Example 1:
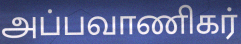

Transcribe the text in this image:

அப்பவாணிகர்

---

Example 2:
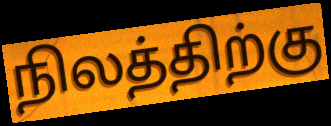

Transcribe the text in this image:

நிலத்திற்கு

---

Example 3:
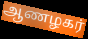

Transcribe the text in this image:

ஆணழகர்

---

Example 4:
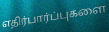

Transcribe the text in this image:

எதிர்பார்ப்புகளை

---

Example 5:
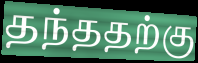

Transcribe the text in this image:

தந்ததற்கு